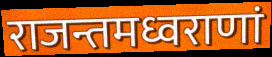
राजन्तमध्वराणां